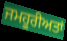
ਜਮਹੂਰੀਅਤਾਂ